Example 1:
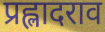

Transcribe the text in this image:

प्रह्लादराव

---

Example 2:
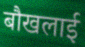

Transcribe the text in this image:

बौखलाई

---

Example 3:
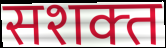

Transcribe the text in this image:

सशक्‍त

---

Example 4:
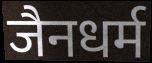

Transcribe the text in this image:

जैनधर्म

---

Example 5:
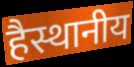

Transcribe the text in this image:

हैस्थानीय